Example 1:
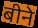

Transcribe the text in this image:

बीने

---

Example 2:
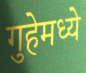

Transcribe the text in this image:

गुहेमध्ये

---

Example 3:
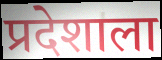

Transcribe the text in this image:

प्रदेशाला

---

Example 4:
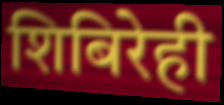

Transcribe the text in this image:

शिबिरेही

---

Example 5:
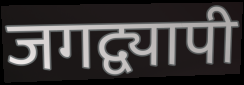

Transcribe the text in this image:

जगद्व्यापी